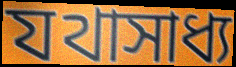
যথাসাধ্য